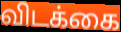
விடக்கை